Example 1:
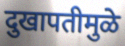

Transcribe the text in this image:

दुखापतीमुळे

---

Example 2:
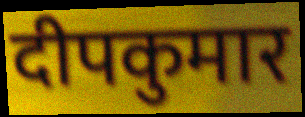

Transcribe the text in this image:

दीपकुमार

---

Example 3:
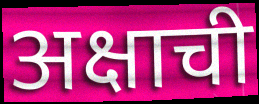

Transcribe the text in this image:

अक्षाची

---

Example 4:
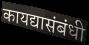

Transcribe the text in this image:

कायद्यासंबंधी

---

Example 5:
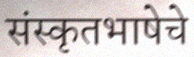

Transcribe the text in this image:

संस्कृतभाषेचे